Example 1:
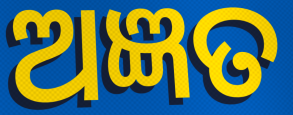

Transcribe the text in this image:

ଅଜ୍ଞତ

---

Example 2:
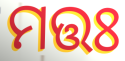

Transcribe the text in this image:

ମତ୍ତଃ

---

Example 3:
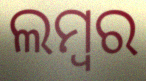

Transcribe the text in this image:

ଲମ୍ୱର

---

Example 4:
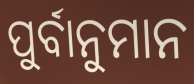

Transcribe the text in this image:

ପୁର୍ବାନୁମାନ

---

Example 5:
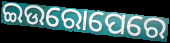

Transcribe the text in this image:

ଇଉରୋପେରେ